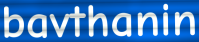
bavthanin